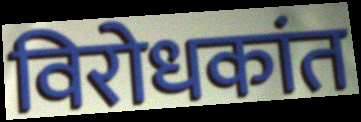
विरोधकांत